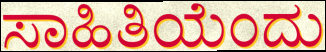
ಸಾಹಿತಿಯೆಂದು